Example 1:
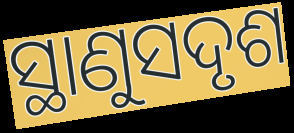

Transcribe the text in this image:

ସ୍ଥାଣୁସଦୃଶ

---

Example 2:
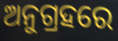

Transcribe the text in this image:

ଅନୁଗ୍ରହରେ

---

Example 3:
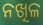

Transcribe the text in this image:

ନଖିଳ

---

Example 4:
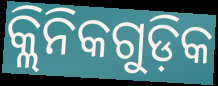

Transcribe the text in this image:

କ୍ଲିନିକଗୁଡ଼ିକ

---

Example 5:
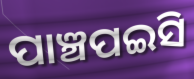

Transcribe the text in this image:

ପାଞ୍ଚପଇସି